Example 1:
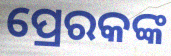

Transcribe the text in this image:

ପ୍ରେରକଙ୍କ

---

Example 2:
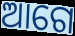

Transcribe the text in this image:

ଆଗେ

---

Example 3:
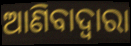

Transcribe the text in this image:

ଆଣିବାଦ୍ୱାରା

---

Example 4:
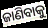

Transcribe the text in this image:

ଜାଣିବାକୁ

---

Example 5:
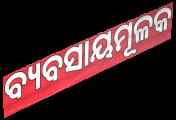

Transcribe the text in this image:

ବ୍ୟବସାୟମୂଳକ